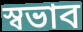
স্বভাব